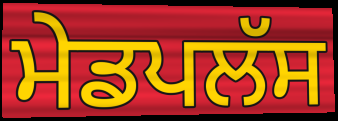
ਮੇਡਪਲੱਸ